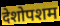
देशोपशम